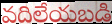
వదిలేయబడి